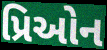
પ્રિઓન